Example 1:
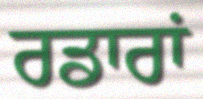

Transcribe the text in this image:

ਰਡਾਰਾਂ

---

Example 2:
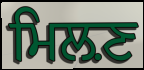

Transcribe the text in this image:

ਮਿਲ਼ਣ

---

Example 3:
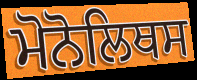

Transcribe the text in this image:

ਮੋਨੋਲਿਥਸ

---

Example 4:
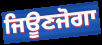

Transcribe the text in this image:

ਜਿਊਣਜੋਗਾ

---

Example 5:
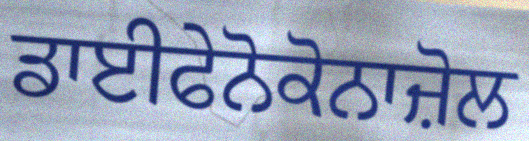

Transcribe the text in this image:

ਡਾਈਫੇਨੋਕੋਨਾਜ਼ੋਲ